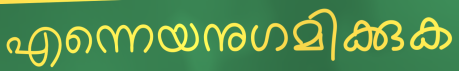
എന്നെയനുഗമിക്കുക